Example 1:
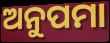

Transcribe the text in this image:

ଅନୁପମା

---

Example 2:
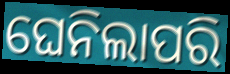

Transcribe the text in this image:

ଘେନିଲାପରି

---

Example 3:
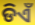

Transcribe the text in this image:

ଡିଏଁ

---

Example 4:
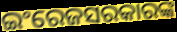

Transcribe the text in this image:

ଇଂରେଜସରକାରଙ୍କ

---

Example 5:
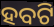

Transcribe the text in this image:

ହବଟି